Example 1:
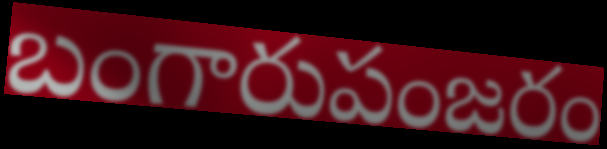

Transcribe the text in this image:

బంగారుపంజరం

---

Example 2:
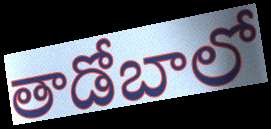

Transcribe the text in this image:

తాడోబాలో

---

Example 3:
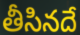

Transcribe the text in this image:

తీసినదే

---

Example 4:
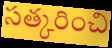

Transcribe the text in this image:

సత్కరించి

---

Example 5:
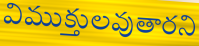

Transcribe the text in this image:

విముక్తులవుతారని